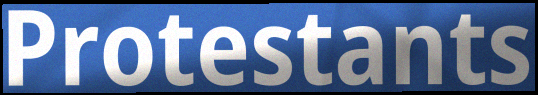
Protestants